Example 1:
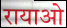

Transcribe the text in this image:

रायाओ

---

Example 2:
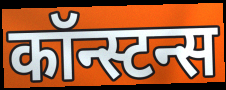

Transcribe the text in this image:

कॉन्स्टन्स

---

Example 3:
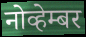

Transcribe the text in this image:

नोव्हेम्बर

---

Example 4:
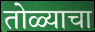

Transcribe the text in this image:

तोळ्याचा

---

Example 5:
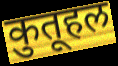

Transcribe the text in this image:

कुतूहल